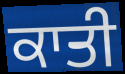
ਕਾਤੀ